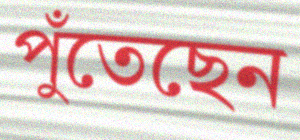
পুঁতেছেন